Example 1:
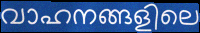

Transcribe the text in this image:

വാഹനങ്ങളിലെ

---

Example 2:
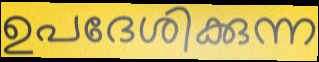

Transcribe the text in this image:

ഉപദേശിക്കുന്ന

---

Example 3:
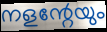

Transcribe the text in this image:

നളന്റേയും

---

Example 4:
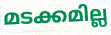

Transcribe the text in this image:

മടക്കമില്ല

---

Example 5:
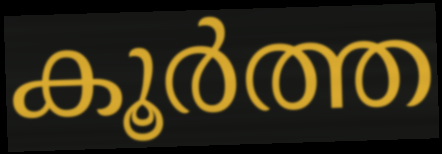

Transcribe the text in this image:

കൂർത്ത